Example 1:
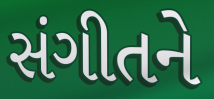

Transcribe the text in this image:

સંગીતને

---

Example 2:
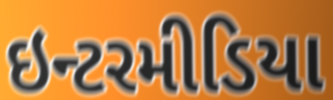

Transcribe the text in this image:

ઇન્ટરમીડિયા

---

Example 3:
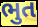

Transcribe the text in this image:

ભુત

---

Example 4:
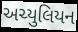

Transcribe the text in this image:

અચ્યુલિયન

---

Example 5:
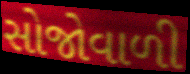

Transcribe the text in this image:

સોજોવાળી